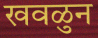
खवळुन